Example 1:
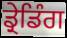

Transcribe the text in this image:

ਡ੍ਰੇਡਿੰਗ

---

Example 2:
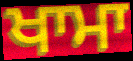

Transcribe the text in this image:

ਖਾਮਾ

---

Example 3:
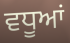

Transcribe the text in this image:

ਵਧੂਆਂ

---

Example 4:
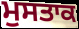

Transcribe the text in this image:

ਮੁਸਤਾਕ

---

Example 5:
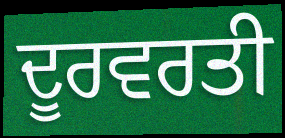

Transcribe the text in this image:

ਦੂਰਵਰਤੀ